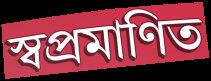
স্বপ্রমাণিত